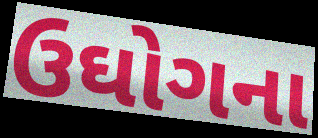
ઉઘોગના